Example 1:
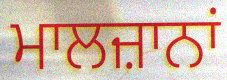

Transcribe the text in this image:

ਮਾਲਜ਼ਾਨਾਂ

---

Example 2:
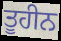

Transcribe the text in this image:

ਤੂਹੀਨ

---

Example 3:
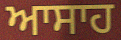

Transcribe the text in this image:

ਆਸਾਹ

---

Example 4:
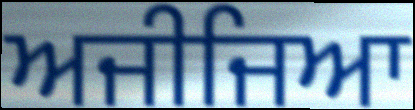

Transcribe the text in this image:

ਅਜੀਜਿਆ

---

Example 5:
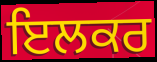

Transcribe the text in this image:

ਇਲਕਰ